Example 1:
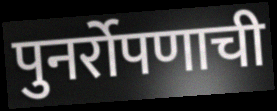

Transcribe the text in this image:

पुनर्रोपणाची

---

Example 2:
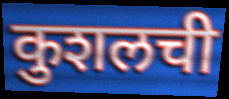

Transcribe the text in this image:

कुशलची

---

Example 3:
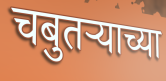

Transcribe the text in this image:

चबुतर्‍याच्या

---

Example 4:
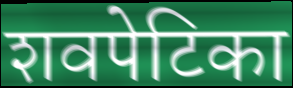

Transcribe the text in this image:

शवपेटिका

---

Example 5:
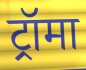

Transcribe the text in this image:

ट्रॉमा